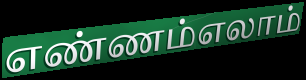
எண்ணம்எலாம்